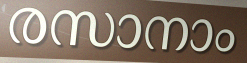
രസാനാം